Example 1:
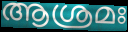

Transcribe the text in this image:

ആശ്രമഃ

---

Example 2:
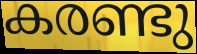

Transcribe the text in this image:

കരണ്ടു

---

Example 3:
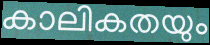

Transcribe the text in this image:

കാലികതയും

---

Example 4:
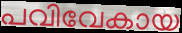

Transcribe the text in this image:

പവിവേകായ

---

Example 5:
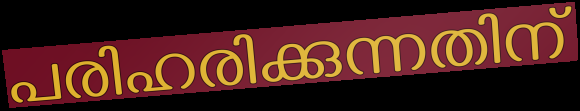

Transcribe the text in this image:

പരിഹരിക്കുന്നതിന്